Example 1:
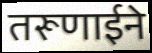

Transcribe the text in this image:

तरूणाईने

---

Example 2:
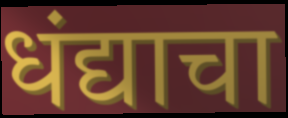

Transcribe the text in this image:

धंद्याचा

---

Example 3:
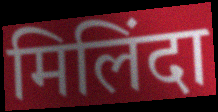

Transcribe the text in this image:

मिलिंदा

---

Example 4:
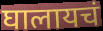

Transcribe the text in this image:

घालायचं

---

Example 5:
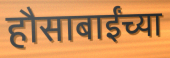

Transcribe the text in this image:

हौसाबाईंच्या